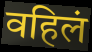
वहिलं